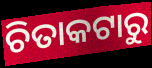
ଚିତାକଟାରୁ